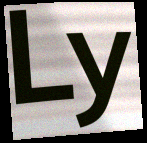
Ly